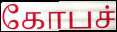
கோபச்